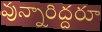
వున్నారిద్దరూ